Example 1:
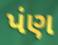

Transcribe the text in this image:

પંણ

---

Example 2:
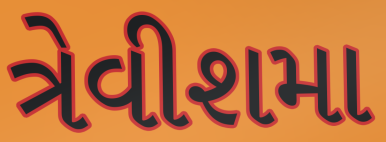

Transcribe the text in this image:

ત્રેવીશમા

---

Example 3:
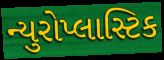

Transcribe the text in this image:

ન્યુરોપ્લાસ્ટિક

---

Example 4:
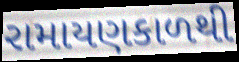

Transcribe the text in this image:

રામાયણકાળથી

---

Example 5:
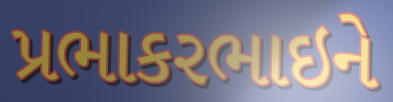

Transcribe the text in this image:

પ્રભાકરભાઇને